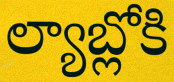
ల్యాబ్లోకి